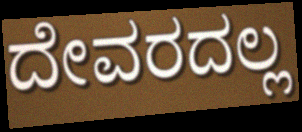
ದೇವರದಲ್ಲ